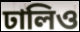
ঢালিও